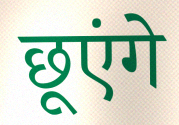
छूएंगे